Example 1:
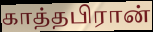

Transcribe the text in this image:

காத்தபிரான்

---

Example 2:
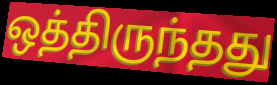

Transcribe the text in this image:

ஒத்திருந்தது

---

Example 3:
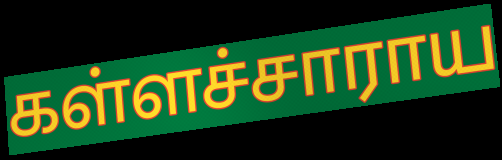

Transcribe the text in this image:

கள்ளச்சாராய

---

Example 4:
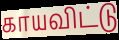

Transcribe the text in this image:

காயவிட்டு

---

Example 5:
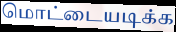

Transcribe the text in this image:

மொட்டையடிக்க